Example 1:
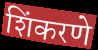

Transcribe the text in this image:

शिंकरणे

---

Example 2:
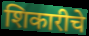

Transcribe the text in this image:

शिकारीचे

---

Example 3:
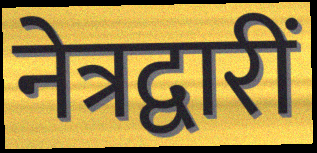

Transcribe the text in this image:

नेत्रद्वारीं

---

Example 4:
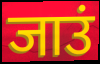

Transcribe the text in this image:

जाउं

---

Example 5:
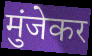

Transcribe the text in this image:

मुंजेकर